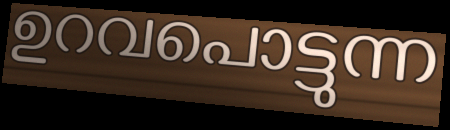
ഉറവപൊട്ടുന്ന